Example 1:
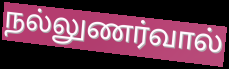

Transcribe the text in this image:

நல்லுணர்வால்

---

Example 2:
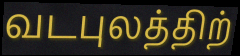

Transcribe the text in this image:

வடபுலத்திற்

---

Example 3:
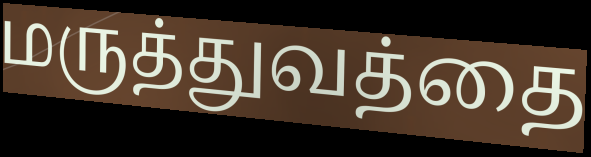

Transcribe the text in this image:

மருத்துவத்தை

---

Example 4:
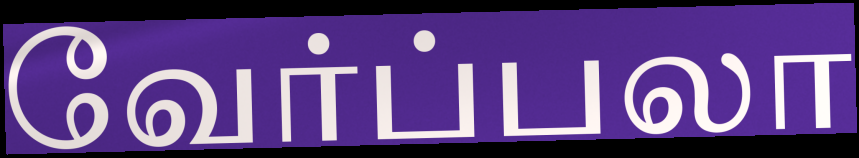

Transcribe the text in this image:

வேர்ப்பலா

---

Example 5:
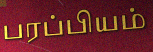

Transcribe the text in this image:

பரப்பியம்